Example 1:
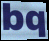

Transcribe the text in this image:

bq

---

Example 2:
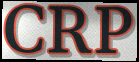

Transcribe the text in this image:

CRP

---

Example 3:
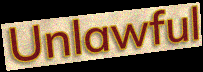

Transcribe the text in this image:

Unlawful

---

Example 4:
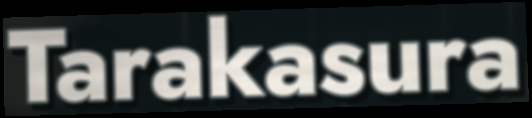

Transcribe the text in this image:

Tarakasura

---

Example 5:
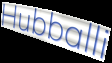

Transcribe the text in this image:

Hubballi